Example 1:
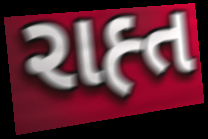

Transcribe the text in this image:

રાહ્ત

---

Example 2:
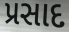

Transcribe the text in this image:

પ્રસાદ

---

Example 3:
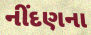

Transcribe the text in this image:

નીંદણના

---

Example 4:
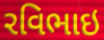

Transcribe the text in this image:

રવિભાઇ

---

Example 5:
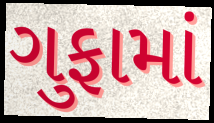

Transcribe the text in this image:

ગુફામાં